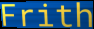
Frith